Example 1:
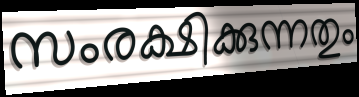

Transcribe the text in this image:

സംരക്ഷിക്കുന്നതും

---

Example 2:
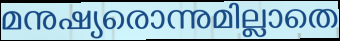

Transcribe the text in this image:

മനുഷ്യരൊന്നുമില്ലാതെ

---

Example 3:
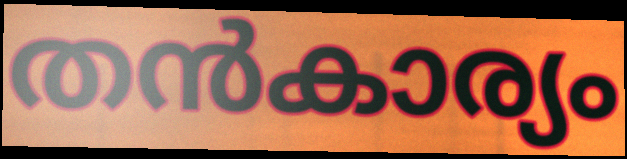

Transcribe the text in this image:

തൻകാര്യം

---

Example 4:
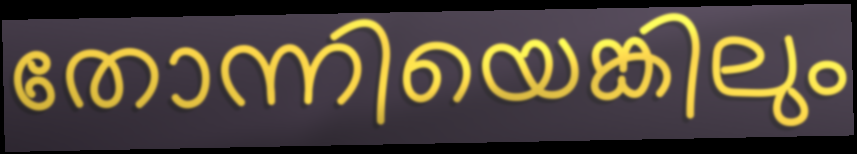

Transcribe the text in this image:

തോന്നിയെങ്കിലും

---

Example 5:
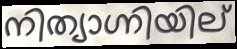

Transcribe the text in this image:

നിത്യാഗ്നിയില്